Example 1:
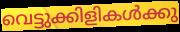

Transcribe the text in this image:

വെട്ടുക്കിളികൾക്കു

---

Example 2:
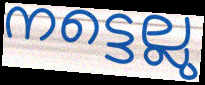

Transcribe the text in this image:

നട്ടെല്ലു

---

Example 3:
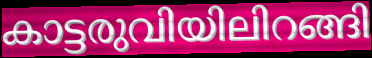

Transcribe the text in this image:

കാട്ടരുവിയിലിറങ്ങി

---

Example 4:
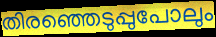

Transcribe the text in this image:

തിരഞ്ഞെടുപ്പുപോലും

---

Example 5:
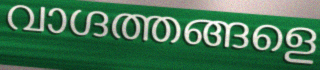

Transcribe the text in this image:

വാഗ്ദത്തങ്ങളെ